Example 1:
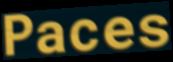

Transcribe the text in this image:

Paces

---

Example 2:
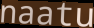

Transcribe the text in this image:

naatu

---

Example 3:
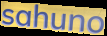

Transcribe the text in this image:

sahuno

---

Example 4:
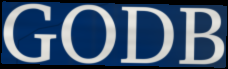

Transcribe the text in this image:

GODB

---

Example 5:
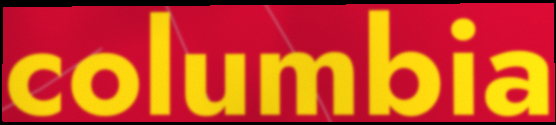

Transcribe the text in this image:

columbia